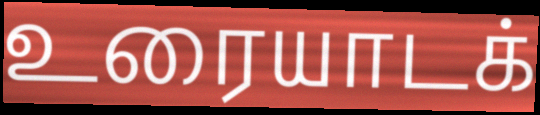
உரையாடக்